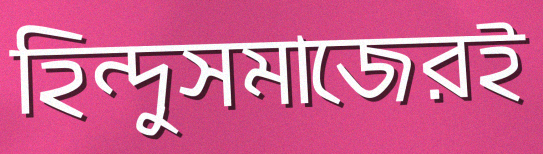
হিন্দুসমাজেরই